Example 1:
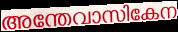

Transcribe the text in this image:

അന്തേവാസികേന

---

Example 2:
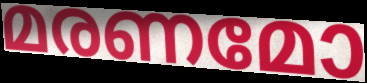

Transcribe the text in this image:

മരണമോ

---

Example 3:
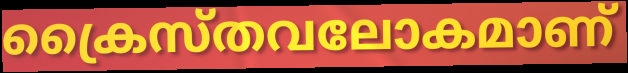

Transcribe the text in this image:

ക്രൈസ്തവലോകമാണ്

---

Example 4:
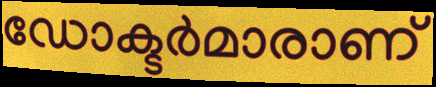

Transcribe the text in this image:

ഡോക്ടർമാരാണ്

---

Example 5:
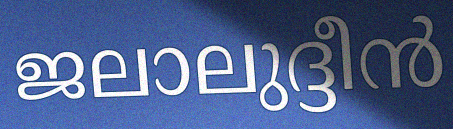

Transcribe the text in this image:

ജലാലുദ്ദീൻ